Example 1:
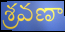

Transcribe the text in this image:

శ్రవణా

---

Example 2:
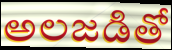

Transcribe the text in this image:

అలజడితో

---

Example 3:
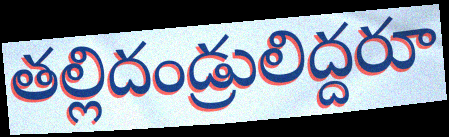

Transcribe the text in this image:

తల్లిదండ్రులిద్దరూ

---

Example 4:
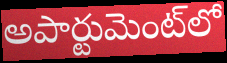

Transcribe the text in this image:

అపార్టుమెంట్‌లో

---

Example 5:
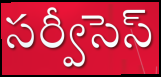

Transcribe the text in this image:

సర్వీసెస్